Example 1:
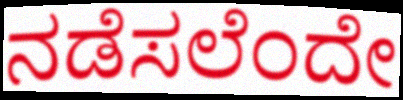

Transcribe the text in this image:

ನಡೆಸಲೆಂದೇ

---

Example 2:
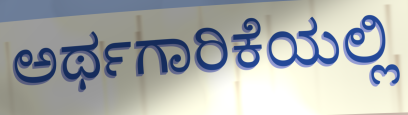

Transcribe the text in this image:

ಅರ್ಥಗಾರಿಕೆಯಲ್ಲಿ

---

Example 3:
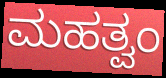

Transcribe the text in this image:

ಮಹತ್ವಂ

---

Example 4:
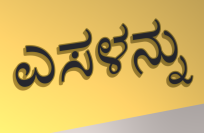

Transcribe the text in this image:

ಎಸಳನ್ನು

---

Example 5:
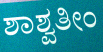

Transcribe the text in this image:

ಶಾಶ್ವತೀಂ